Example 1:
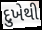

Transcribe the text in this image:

દુખેથી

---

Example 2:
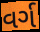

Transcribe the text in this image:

વર્ગ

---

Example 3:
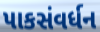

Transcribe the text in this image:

પાકસંવર્ધન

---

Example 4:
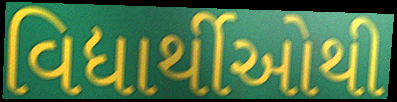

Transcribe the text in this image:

વિદ્યાર્થીઓથી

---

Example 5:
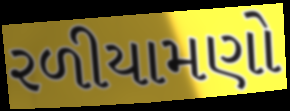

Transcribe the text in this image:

રળીયામણો